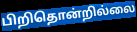
பிறிதொன்றில்லை